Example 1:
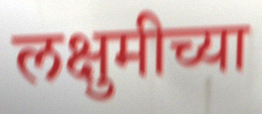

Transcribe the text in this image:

लक्षुमीच्या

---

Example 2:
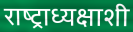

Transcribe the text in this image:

राष्ट्राध्यक्षाशी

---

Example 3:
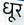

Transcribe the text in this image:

धूर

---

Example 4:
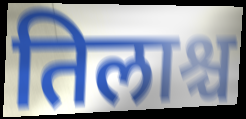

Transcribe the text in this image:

तिलाश्च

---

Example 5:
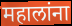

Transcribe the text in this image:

महालांना